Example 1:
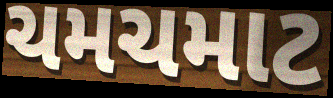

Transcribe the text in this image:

ચમચમાટ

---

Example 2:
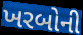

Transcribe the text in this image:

ખરબોની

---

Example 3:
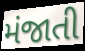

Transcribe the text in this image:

મંજાતી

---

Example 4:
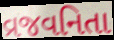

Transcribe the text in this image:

વ્રજવનિતા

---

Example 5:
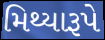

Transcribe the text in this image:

મિથ્યારૂપે